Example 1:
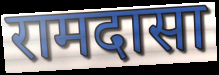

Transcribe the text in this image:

रामदासा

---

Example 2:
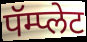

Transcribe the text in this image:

पॅम्प्लेट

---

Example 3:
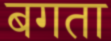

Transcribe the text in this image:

बगता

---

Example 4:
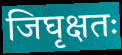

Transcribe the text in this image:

जिघृक्षतः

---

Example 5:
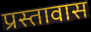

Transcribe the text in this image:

प्रस्तावास